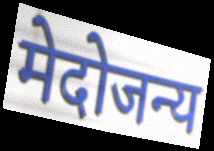
मेदोजन्य